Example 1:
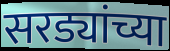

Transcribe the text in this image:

सरड्यांच्या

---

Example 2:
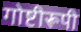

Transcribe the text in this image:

गोष्टीरूपी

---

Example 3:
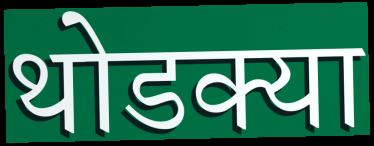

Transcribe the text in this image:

थोडक्या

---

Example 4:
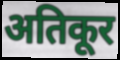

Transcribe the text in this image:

अतिकूर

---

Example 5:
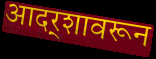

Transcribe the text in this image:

आदर्शावरून